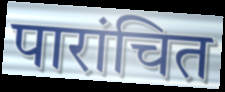
पारांचित